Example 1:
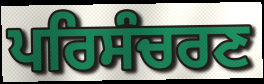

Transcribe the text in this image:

ਪਰਿਸੰਚਰਣ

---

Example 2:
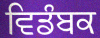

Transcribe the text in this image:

ਵਿਡੰਬਕ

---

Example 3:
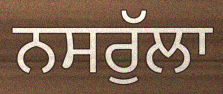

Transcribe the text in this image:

ਨਸਰੁੱਲਾ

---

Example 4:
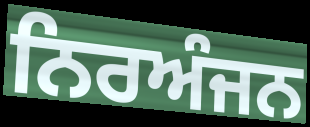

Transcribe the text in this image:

ਨਿਰਅੰਜਨ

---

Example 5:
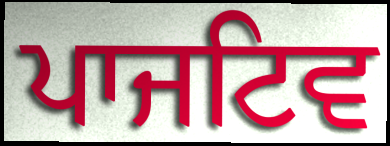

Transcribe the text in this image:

ਪਾਜਟਿਵ